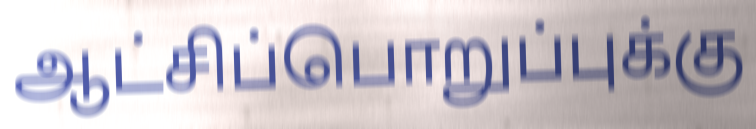
ஆட்சிப்பொறுப்புக்கு